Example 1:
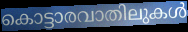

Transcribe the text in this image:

കൊട്ടാരവാതിലുകൾ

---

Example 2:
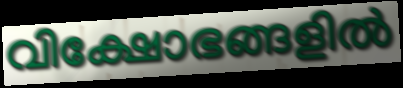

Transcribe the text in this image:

വിക്ഷോഭങ്ങളിൽ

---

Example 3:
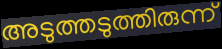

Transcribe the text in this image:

അടുത്തടുത്തിരുന്ന്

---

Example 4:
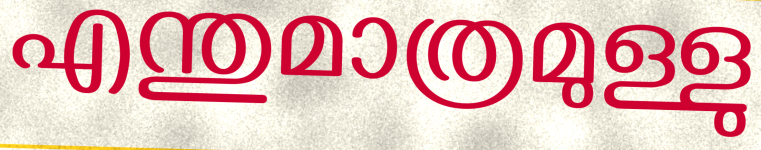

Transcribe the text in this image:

എന്തുമാത്രമുള്ളു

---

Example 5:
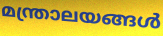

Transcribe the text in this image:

മന്ത്രാലയങ്ങൾ